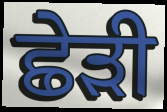
ਛੇੜੀ